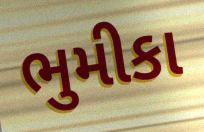
ભુમીકા